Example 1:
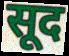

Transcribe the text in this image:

सूद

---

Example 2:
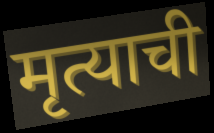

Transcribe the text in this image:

मृत्याची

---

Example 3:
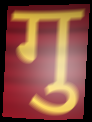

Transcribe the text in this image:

गु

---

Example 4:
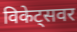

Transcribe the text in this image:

विकेट्सवर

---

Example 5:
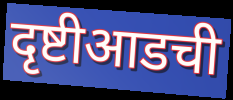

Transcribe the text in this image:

दृष्टीआडची